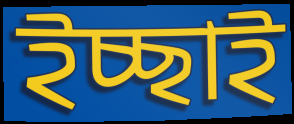
ইচ্ছাই